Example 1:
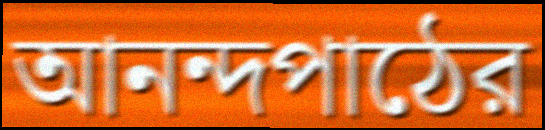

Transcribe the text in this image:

আনন্দপাঠের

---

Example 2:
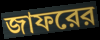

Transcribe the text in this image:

জাফরের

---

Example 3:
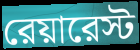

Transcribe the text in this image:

রেয়ারেস্ট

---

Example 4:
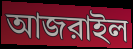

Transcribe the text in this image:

আজরাইল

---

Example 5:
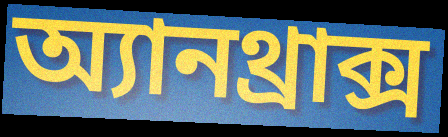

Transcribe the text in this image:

অ্যানথ্রাক্স